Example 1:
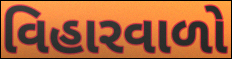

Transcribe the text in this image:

વિહારવાળો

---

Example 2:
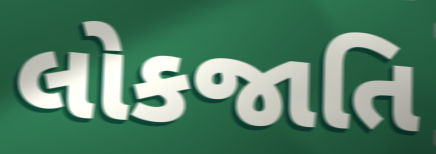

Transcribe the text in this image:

લોકજાતિ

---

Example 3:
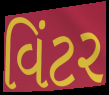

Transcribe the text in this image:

વિંટર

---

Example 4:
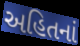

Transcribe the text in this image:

અહિતનાં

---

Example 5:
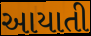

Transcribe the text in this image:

આયાતી